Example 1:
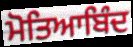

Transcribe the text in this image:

ਮੋਤਿਆਬਿੰਦ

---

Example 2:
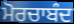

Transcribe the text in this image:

ਮੋਰਚਾਬੰਦ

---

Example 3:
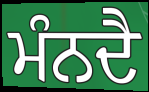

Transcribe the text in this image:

ਮੰਨਦੈ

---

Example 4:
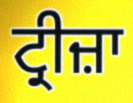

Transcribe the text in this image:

ਟ੍ਰੀਜ਼ਾ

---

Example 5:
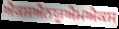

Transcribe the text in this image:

ਐਕਸਐਨਯੂਐਮਐਕਸ